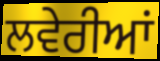
ਲਵੇਰੀਆਂ